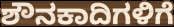
ಶೌನಕಾದಿಗಳಿಗೆ